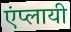
एंप्लायी